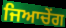
ਜਿਆਚੇਂਗ